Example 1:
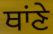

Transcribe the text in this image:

ਥਾਂਣੇ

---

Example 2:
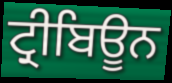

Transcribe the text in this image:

ਟ੍ਰੀਬਿਊਨ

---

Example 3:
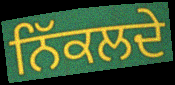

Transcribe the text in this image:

ਨਿੱਕਲਦੇ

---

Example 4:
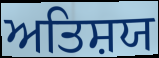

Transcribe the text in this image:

ਅਤਿਸ਼ਯ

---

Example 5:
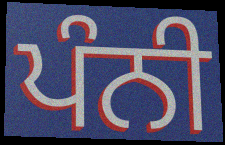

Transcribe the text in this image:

ਪੰਨੀ